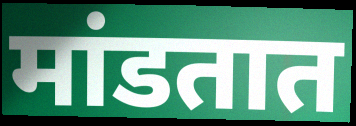
मांडतात